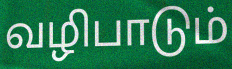
வழிபாடும்